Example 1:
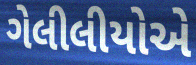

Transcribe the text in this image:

ગેલીલીયોએ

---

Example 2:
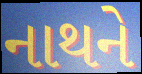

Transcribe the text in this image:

નાથને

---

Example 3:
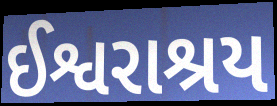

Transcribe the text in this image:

ઈશ્વરાશ્રય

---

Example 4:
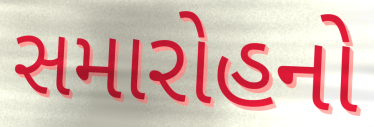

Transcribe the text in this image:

સમારોહનો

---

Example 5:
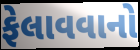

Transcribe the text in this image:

ફેલાવવાનો